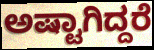
ಅಷ್ಟಾಗಿದ್ದರೆ